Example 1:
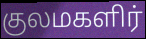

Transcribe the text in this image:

குலமகளிர்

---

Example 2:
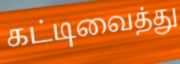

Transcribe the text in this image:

கட்டிவைத்து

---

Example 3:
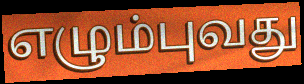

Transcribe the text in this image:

எழும்புவது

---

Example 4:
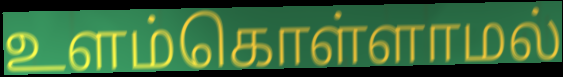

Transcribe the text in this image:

உளம்கொள்ளாமல்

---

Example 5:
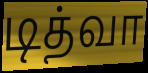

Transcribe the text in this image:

டித்வா